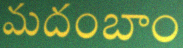
మదంబాం